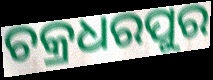
ଚକ୍ରଧରପୁର